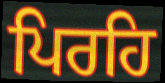
ਪਿਰਹਿ